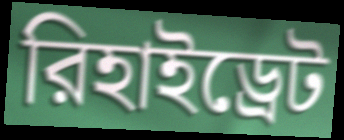
রিহাইড্রেট